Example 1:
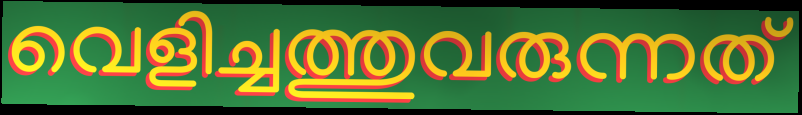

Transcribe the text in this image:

വെളിച്ചത്തുവരുന്നത്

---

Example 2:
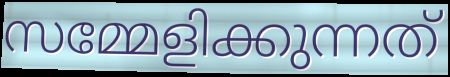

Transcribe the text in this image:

സമ്മേളിക്കുന്നത്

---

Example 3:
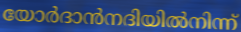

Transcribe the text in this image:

യോർദാൻനദിയിൽനിന്ന്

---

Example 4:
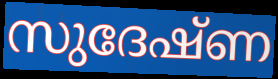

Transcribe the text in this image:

സുദേഷ്ണ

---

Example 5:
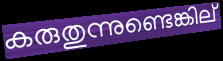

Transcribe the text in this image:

കരുതുന്നുണ്ടെങ്കില്